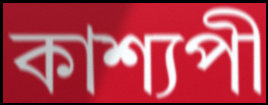
কাশ্যপী